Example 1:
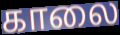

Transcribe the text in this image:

காலை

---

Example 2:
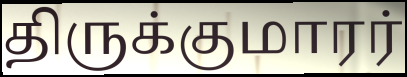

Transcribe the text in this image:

திருக்குமாரர்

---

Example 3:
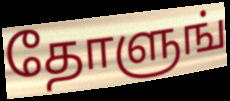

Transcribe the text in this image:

தோளுங்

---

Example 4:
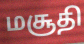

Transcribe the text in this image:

மசூதி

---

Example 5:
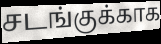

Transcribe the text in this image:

சடங்குக்காக